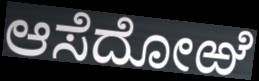
ಆಸೆದೋಱೆ